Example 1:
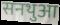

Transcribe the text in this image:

सनथुआ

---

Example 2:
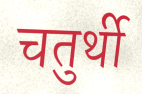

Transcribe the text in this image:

चतुर्थी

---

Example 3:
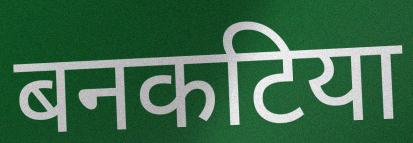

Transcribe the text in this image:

बनकटिया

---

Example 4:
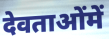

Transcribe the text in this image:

देवताओंमें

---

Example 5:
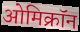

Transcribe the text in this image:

ओमिक्रॉन